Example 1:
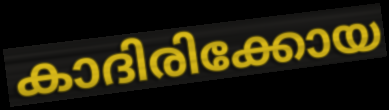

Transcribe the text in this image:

കാദിരിക്കോയ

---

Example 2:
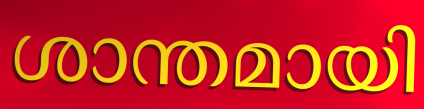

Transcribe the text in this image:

ശാന്തമായി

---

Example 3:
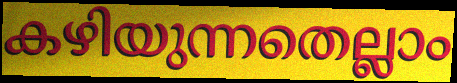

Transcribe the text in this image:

കഴിയുന്നതെല്ലാം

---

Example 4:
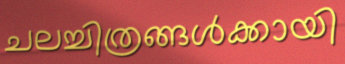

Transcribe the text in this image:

ചലച്ചിത്രങ്ങൾക്കായി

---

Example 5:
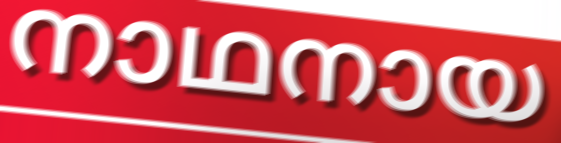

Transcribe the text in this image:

നാഥനായ